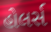
હોલર્સ